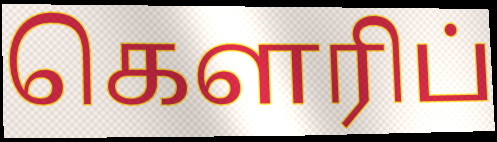
கௌரிப்